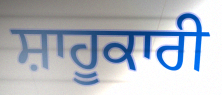
ਸ਼ਾਹੂਕਾਰੀ